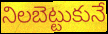
నిలబెట్టుకునే